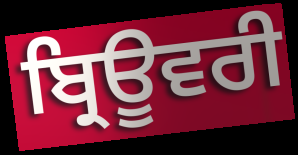
ਬ੍ਰਿਊਵਰੀ